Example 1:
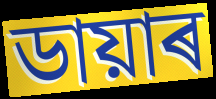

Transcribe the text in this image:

ডায়াৰ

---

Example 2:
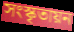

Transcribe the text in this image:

সংস্কৃতায়ন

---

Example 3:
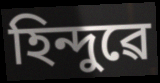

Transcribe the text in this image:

হিন্দুৱে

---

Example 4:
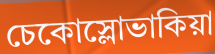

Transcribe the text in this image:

চেকোস্লোভাকিয়া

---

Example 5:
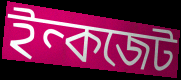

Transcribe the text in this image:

ইন্কজেট